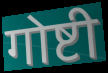
गोष्टी